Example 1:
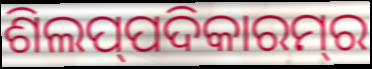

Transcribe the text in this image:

ଶିଲପ୍‍ପଦିକାରମ୍‍ର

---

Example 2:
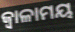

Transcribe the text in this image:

ଜ୍ୱାଳାମୟ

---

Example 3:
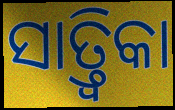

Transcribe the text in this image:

ସାତ୍ତ୍ୱିକା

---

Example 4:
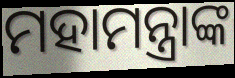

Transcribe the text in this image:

ମହାମନ୍ତ୍ରାଙ୍କ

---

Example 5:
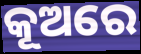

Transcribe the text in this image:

କୂଅରେ